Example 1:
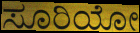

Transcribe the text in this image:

ಸೂರಿಯೋ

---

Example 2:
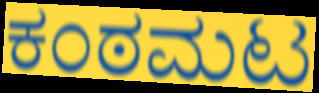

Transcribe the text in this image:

ಕಂಠಮಟ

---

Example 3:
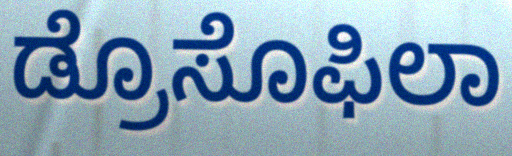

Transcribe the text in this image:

ಡ್ರೊಸೊಫಿಲಾ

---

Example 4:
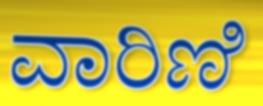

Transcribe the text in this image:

ವಾರಿಣಿ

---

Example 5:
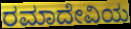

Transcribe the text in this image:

ರಮಾದೇವಿಯ